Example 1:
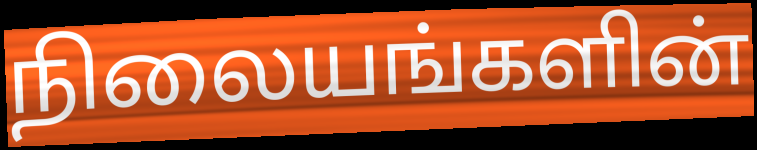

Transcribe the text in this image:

நிலையங்களின்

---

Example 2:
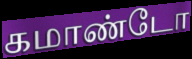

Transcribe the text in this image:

கமாண்டோ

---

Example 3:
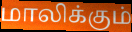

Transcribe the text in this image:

மாலிக்கும்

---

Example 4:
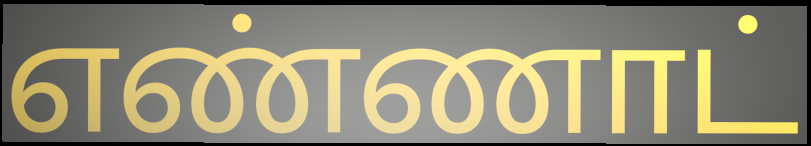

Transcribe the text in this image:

எண்ணாட்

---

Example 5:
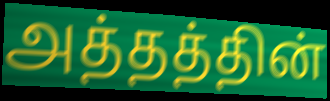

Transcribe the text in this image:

அத்தத்தின்